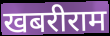
खबरीराम